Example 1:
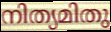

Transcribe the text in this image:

നിത്യമിതു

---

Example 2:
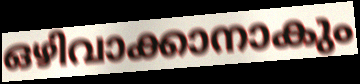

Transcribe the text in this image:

ഒഴിവാക്കാനാകും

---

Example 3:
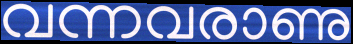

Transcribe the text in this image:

വന്നവരാണു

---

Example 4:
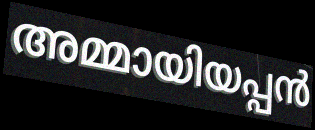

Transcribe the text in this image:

അമ്മായിയപ്പൻ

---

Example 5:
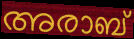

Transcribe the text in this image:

അരാബ്